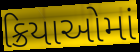
ક્રિયાઓમાં